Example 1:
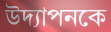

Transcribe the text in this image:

উদ্যাপনকে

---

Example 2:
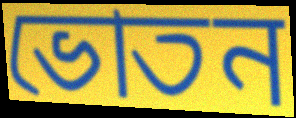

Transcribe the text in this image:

ভোতন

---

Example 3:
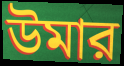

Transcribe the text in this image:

উমার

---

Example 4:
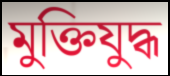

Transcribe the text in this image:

মুক্তিযুদ্ধ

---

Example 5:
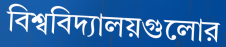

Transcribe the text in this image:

বিশ্ববিদ্যালয়গুলোর